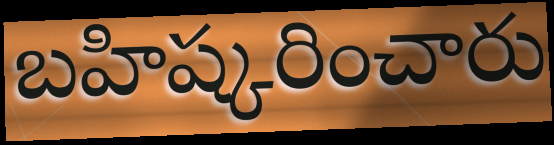
బహిష్కరించారు